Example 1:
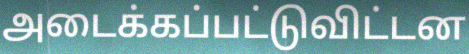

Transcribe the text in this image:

அடைக்கப்பட்டுவிட்டன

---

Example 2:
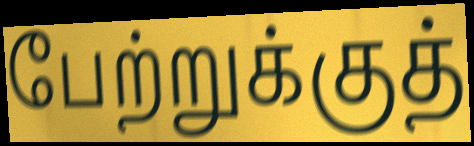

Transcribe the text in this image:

பேற்றுக்குத்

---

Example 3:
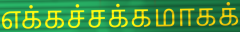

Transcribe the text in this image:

எக்கச்சக்கமாகக்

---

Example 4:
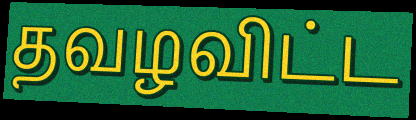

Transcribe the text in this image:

தவழவிட்ட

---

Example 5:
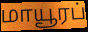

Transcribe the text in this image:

மாயூரப்